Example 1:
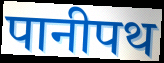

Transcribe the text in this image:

पानीपथ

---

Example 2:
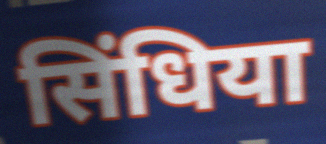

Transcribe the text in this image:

सिंधिया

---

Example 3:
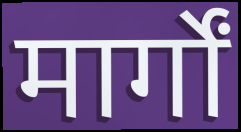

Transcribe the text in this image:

मार्गों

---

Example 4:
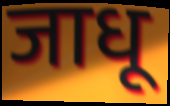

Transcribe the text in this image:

जाधू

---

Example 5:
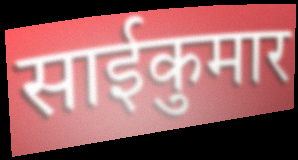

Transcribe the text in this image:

साईकुमार